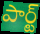
పార్ట్